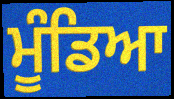
ਮੂੰਡਿਆ